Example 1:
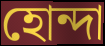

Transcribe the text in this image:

হোন্দা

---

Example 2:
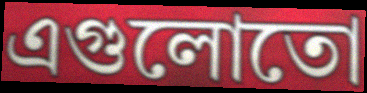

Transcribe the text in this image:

এগুলোতো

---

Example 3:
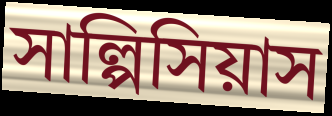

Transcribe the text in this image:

সাল্পিসিয়াস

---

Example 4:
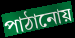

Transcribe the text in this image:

পাঠানোয়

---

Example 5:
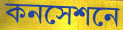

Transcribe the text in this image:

কনসেশনে